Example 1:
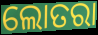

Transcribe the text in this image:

ଲୋତରା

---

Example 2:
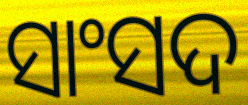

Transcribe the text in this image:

ସାଂସଦ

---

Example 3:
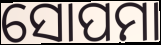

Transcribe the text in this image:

ସୋପମା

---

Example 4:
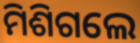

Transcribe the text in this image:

ମିଶିଗଲେ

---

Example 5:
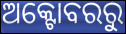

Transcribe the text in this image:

ଅକ୍ଟୋବରରୁ